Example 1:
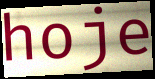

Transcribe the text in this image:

hoje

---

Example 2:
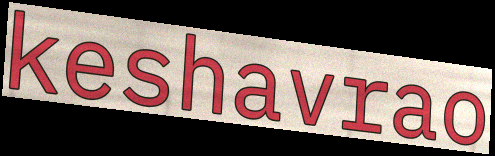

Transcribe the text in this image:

keshavrao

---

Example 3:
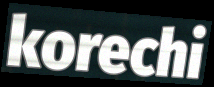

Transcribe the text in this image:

korechi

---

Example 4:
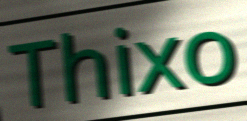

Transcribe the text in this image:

Thixo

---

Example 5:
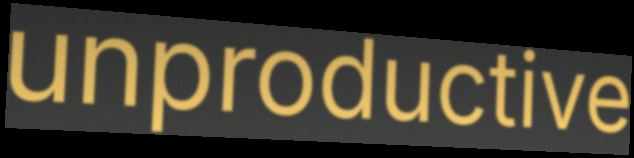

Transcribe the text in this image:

unproductive